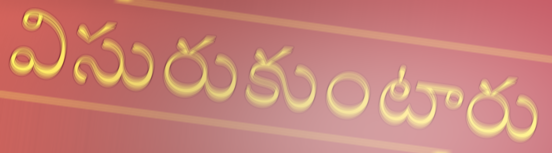
విసురుకుంటారు